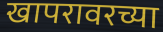
खापरावरच्या